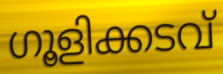
ഗൂളിക്കടവ്